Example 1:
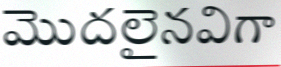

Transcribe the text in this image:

మొదలైనవిగా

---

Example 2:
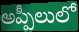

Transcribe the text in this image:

అప్పీలులో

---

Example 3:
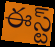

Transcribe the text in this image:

ఈస్ట్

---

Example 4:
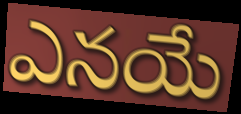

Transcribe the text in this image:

ఎనయే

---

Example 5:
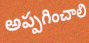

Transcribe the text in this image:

అప్పగించాలి